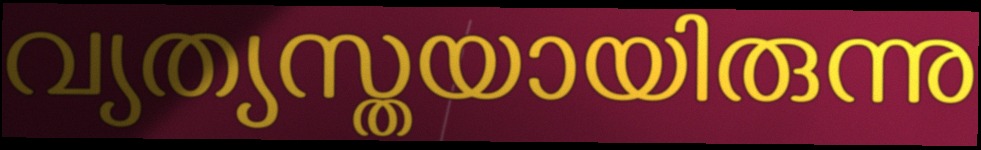
വ്യത്യസ്തയായിരുന്നു